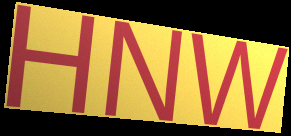
HNW